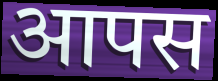
आपस